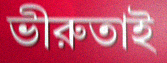
ভীরুতাই